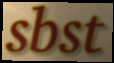
sbst